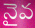
నైవ